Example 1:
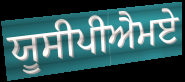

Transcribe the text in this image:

ਯੂਸੀਪੀਐਮਏ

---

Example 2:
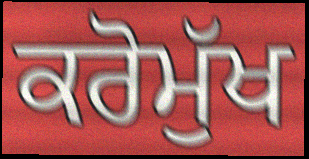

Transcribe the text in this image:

ਕਰੋਮੁੱਖ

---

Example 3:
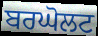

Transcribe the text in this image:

ਬਰਘੋਲਟ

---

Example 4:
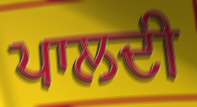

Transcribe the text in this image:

ਪਾਲਦੀ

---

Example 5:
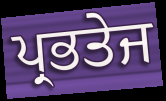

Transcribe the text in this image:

ਪ੍ਰਭਤੇਜ